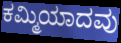
ಕಮ್ಮಿಯಾದವು